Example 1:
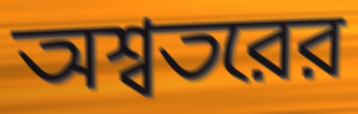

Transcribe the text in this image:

অশ্বতরের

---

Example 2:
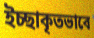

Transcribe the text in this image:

ইচ্ছাকৃতভাবে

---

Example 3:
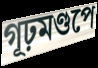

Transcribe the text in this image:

গূঢ়মণ্ডপে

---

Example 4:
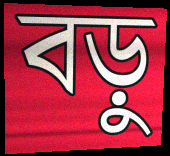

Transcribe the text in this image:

বড়ু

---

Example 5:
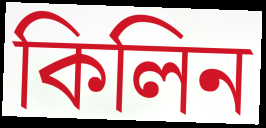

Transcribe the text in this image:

কিলিন